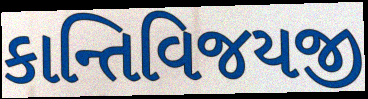
કાન્તિવિજયજી